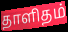
தாளிதம்